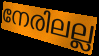
നേരിലല്ല